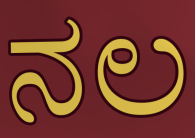
ನಲ